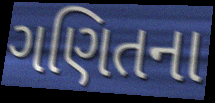
ગણિતના